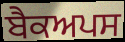
ਬੈਕਅਪਸ